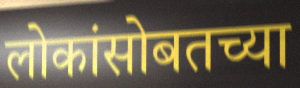
लोकांसोबतच्या